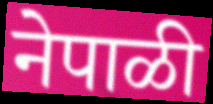
नेपाळी